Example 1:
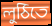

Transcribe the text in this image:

লুঠিতে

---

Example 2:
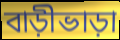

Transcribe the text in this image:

বাড়ীভাড়া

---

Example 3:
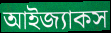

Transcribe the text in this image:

আইজ্যাকস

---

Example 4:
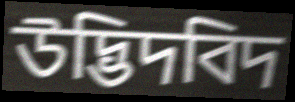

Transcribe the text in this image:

উদ্ভিদবিদ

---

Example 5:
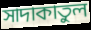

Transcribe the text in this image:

সাদাকাতুল